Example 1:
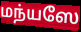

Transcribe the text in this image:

மந்யஸே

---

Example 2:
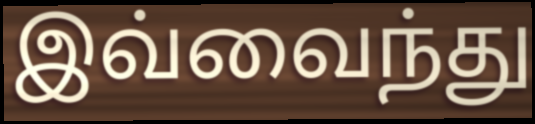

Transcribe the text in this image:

இவ்வைந்து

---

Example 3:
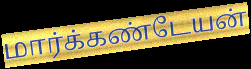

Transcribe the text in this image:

மார்க்கண்டேயன்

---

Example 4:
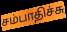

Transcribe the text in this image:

சம்பாதிச்சு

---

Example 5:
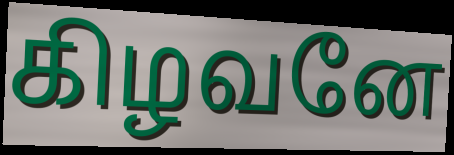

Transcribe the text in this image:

கிழவனே